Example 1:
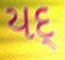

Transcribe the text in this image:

યદ્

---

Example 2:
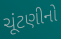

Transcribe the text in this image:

ચૂંટણીનો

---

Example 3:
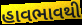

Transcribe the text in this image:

હાવભાવથી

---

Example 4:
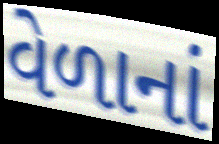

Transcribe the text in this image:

વેળાનાં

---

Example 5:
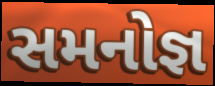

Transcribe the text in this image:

સમનોજ્ઞ